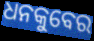
ଧନକୁବେର